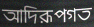
আদিরূপগত